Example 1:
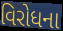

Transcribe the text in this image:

વિરોધના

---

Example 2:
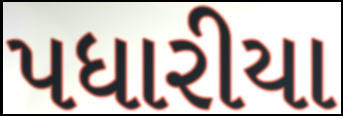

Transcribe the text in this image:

પધારીયા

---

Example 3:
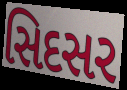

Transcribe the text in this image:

સિદસર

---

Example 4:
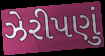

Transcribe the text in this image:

ઝેરીપણું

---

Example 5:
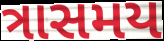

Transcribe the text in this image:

ત્રાસમય